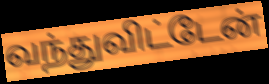
வந்துவிட்டேன்